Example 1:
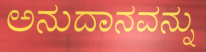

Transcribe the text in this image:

ಅನುದಾನವನ್ನು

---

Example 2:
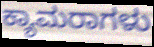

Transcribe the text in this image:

ಕ್ಯಾಮರಾಗಳು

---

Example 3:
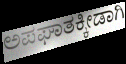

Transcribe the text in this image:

ಅಪಘಾತಕ್ಕೀಡಾಗಿ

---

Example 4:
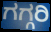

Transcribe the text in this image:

ಗಗ್ಗರಿ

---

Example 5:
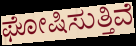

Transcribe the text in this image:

ಘೋಷಿಸುತ್ತಿವೆ